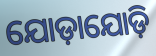
ଯୋଡ଼ାଯୋଡ଼ି